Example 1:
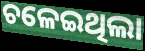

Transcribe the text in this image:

ଚଳେଇଥିଲା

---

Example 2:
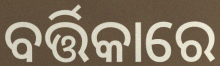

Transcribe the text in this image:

ବର୍ତ୍ତିକାରେ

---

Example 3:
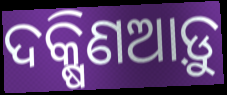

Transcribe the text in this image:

ଦକ୍ଷିଣଆଡ଼ୁ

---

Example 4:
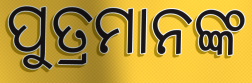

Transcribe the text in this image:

ପୁତ୍ରମାନଙ୍କ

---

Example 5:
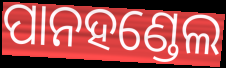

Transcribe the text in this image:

ପାନହଣ୍ଡେଲ